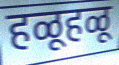
हळूहळू